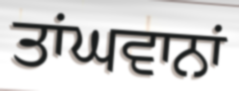
ਤਾਂਘਵਾਨਾਂ